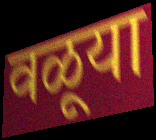
वळूया